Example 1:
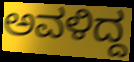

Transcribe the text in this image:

ಅವಳಿದ್ದ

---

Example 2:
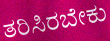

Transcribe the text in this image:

ತರಿಸಿರಬೇಕು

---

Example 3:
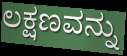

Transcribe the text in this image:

ಲಕ್ಷಣವನ್ನು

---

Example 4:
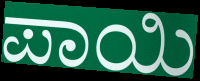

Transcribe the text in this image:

ಪಾಯಿ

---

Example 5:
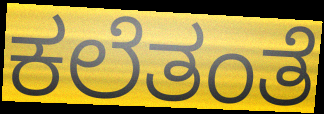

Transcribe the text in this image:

ಕಲೆತಂತೆ